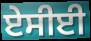
ਏਸੀਈ